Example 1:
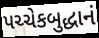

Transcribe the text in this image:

પચ્ચેકબુદ્ધાનં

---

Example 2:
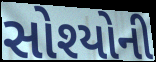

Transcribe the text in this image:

સોશ્યોની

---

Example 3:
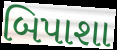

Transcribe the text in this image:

બિપાશા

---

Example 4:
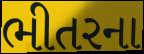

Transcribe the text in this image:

ભીતરના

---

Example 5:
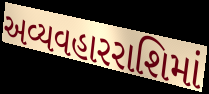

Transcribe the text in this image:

અવ્યવહારરાશિમાં